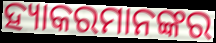
ହ୍ୟାକରମାନଙ୍କର